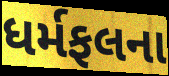
ધર્મફલના